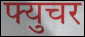
फ्युचर